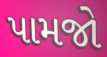
પામજો